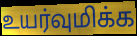
உயர்வுமிக்க